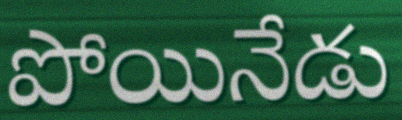
పోయినేడు